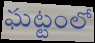
ఘట్టంలో